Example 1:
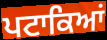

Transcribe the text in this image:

ਪਟਾਕਿਆਂ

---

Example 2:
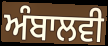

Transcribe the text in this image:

ਅੰਬਾਲਵੀ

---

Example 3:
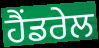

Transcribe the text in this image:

ਹੈਂਡਰੇਲ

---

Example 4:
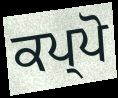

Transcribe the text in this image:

ਕਪ੍ਪੋ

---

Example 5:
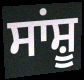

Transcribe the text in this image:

ਸਾਂਸ਼ੂ